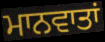
ਮਾਨਵਾਤਾਂ